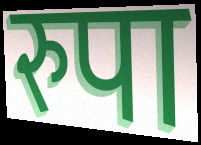
रुपा